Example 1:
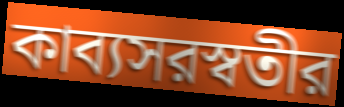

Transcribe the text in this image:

কাব্যসরস্বতীর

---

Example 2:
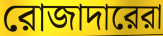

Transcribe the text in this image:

রোজাদারেরা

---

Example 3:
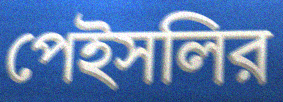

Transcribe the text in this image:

পেইসলির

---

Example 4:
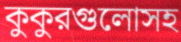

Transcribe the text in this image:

কুকুরগুলোসহ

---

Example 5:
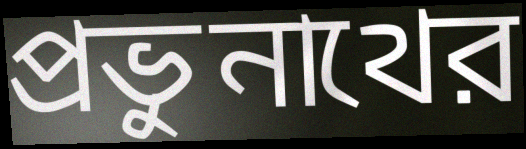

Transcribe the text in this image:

প্রভুনাথের